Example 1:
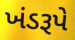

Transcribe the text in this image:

ખંડરૂપે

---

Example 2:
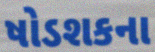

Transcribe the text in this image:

ષોડશકના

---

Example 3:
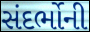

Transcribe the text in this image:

સંદર્ભોની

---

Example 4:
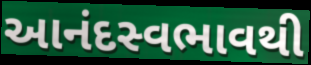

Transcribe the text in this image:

આનંદસ્વભાવથી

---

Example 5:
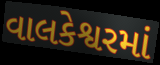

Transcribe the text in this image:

વાલકેશ્વરમાં